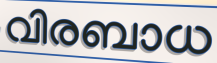
വിരബാധ